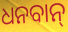
ଧନବାନ୍